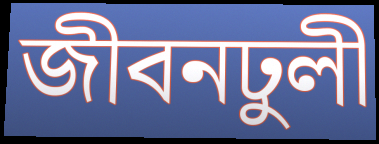
জীবনঢুলী